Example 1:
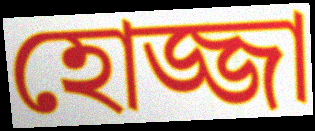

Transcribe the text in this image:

হোজ্জা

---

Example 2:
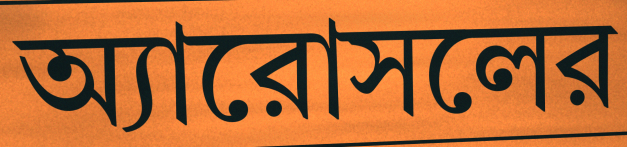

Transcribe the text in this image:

অ্যারোসলের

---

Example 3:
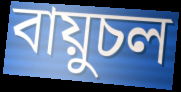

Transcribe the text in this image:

বায়ুচল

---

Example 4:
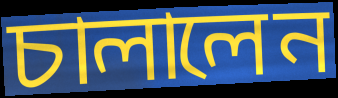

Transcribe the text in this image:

চালালেন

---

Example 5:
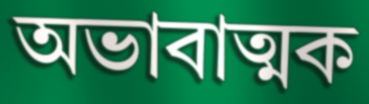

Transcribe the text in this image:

অভাবাত্মক